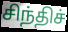
சிந்திச்